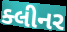
ક્લીનર